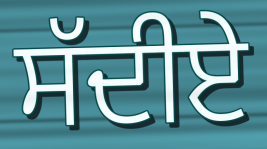
ਸੱਦੀਏ